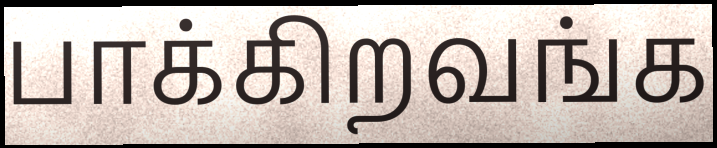
பாக்கிறவங்க